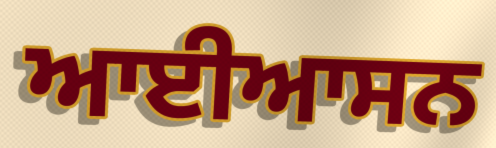
ਆਈਆਸਨ